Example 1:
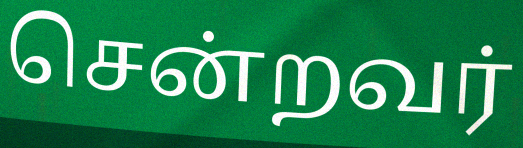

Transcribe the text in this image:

சென்றவர்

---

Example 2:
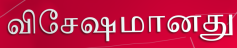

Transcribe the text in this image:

விசேஷமானது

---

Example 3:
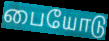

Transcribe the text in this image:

பையோடு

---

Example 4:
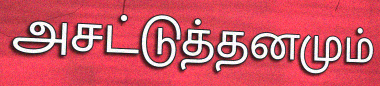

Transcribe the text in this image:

அசட்டுத்தனமும்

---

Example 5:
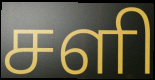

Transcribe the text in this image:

சளி